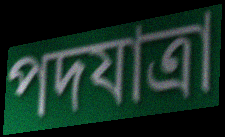
পদযাত্রা